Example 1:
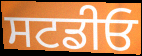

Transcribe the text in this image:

ਸਟਡੀਓ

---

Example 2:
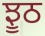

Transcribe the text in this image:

ਝੂਠ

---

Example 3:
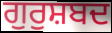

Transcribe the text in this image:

ਗੁਰੁਸ਼ਬਦ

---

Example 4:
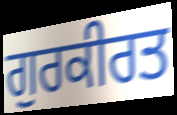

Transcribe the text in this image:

ਗੁਰਕੀਰਤ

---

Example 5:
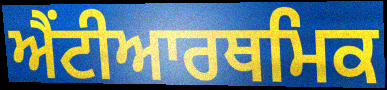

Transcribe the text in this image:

ਐਂਟੀਆਰਥਮਿਕ